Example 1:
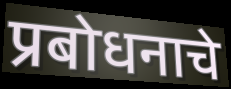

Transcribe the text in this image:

प्रबोधनाचे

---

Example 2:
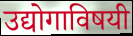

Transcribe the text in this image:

उद्योगाविषयी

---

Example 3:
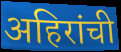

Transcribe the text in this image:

अहिरांची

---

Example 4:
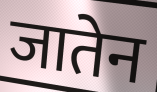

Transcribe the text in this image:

जातेन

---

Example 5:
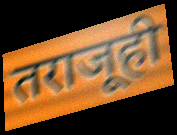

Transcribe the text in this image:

तराजूही